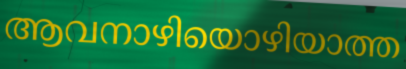
ആവനാഴിയൊഴിയാത്ത